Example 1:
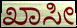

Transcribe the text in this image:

ಖಾಸೀ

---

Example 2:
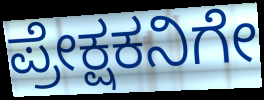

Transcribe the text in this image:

ಪ್ರೇಕ್ಷಕನಿಗೇ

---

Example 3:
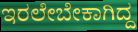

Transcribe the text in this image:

ಇರಲೇಬೇಕಾಗಿದ್ದ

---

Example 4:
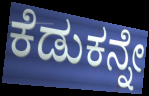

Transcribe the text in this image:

ಕೆಡುಕನ್ನೇ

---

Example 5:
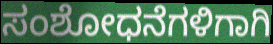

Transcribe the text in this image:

ಸಂಶೋಧನೆಗಳಿಗಾಗಿ